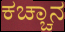
ಕಚ್ಚಾನ